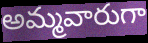
అమ్మవారుగా